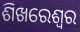
ଶିଖରେଶ୍ୱର